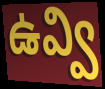
ఉవ్వి